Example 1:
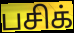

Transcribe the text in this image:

பசிக்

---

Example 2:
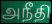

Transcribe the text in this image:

அநீதி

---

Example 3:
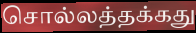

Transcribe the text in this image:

சொல்லத்தக்கது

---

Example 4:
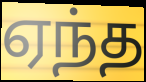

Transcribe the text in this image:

ஏந்த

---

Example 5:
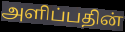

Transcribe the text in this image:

அளிப்பதின்